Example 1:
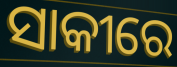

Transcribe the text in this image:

ସାକୀରେ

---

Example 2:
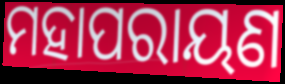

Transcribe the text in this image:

ମହାପରାୟଣ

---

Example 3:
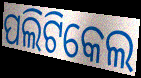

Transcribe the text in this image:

ପଲିଟିକେଲ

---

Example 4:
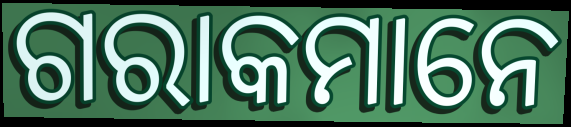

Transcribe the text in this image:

ଗରାକମାନେ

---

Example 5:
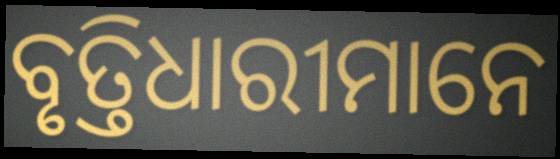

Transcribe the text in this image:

ବୃତ୍ତିଧାରୀମାନେ